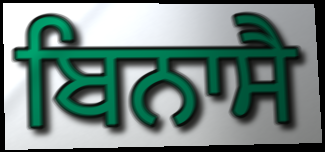
ਬਿਨਾਸੈ